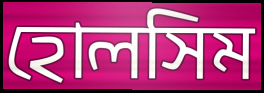
হোলসিম